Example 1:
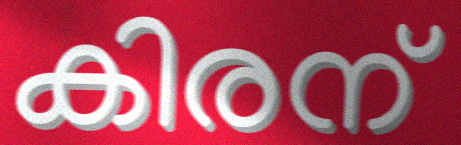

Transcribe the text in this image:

കിരന്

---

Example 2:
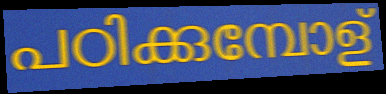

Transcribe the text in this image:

പഠിക്കുമ്പോള്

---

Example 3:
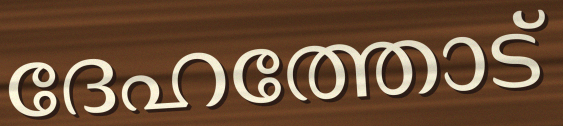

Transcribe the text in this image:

ദേഹത്തോട്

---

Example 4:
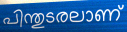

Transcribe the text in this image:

പിന്തുടരലാണ്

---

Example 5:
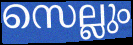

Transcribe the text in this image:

സെല്ലും